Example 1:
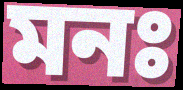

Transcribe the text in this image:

মনঃ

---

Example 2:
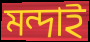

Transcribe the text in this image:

মন্দাই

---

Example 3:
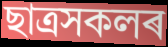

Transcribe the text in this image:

ছাত্ৰসকলৰ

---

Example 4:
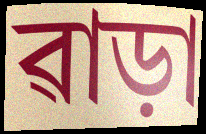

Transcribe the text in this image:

ৱাড়া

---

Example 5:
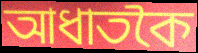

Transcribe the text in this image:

আধাতকৈ